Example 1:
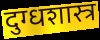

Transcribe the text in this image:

दुग्धशास्त्र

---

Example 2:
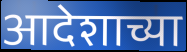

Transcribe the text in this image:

आदेशाच्या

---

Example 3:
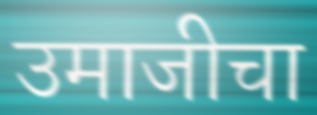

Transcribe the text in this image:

उमाजीचा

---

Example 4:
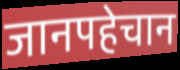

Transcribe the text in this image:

जानपहेचान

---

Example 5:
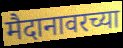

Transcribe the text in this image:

मैदानावरच्या